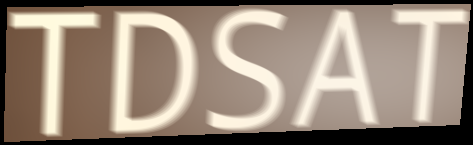
TDSAT